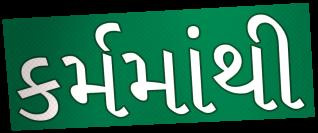
કર્મમાંથી